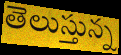
తెలుస్తున్న